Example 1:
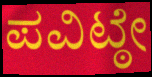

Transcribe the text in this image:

ಪವಿಟ್ಠೇ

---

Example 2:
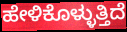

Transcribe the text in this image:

ಹೇಳಿಕೊಳ್ಳುತ್ತಿದೆ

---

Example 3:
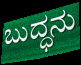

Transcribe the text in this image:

ಬುದ್ಧನು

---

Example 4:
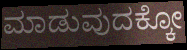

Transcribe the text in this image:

ಮಾಡುವುದಕ್ಕೋ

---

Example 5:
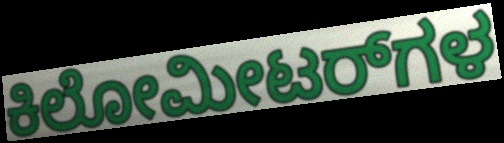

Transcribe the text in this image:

ಕಿಲೋಮೀಟರ್‌ಗಳ